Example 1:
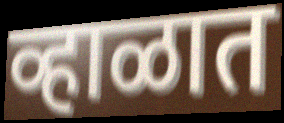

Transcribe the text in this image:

व्हाळात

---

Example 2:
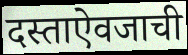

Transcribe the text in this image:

दस्ताऐवजाची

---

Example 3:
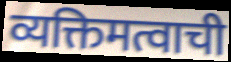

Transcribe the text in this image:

व्यक्तिमत्वाची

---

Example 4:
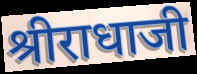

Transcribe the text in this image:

श्रीराधाजी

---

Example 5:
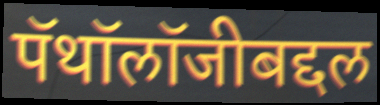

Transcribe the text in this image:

पॅथॉलॉजीबद्दल